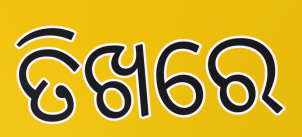
ତିଖରେ